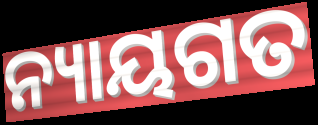
ନ୍ୟାୟଗତ